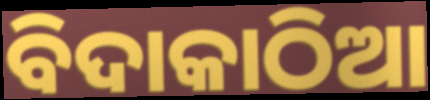
ବିଦାକାଠିଆ